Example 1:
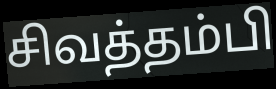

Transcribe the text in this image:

சிவத்தம்பி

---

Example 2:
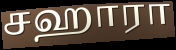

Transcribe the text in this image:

சஹாரா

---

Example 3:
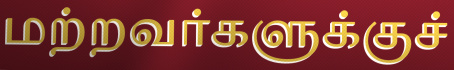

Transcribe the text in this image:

மற்றவர்களுக்குச்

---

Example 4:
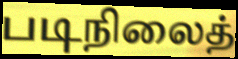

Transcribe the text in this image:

படிநிலைத்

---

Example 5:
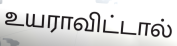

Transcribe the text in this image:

உயராவிட்டால்